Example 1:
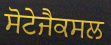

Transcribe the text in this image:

ਸੋਟੇਜੈਕਸਲ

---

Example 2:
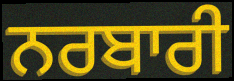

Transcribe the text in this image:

ਨਰਬਾਰੀ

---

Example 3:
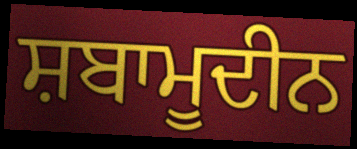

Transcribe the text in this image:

ਸ਼ਬਾਮੂਦੀਨ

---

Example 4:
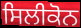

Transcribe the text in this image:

ਸਿਲੀਕੋਨ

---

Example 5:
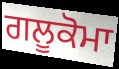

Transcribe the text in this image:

ਗਲੂਕੋਮਾ